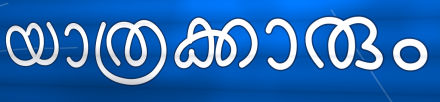
യാത്രക്കാരും